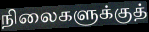
நிலைகளுக்குத்